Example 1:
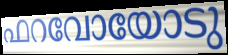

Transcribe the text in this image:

ഫറവോയോടു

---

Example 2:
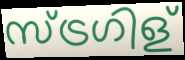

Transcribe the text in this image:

സ്ട്രഗിള്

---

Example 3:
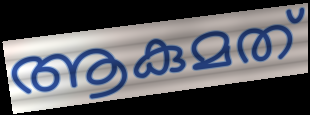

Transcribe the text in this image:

ആകുമത്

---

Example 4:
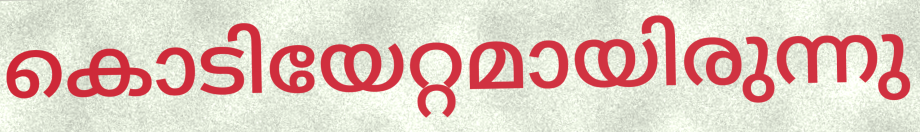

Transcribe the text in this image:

കൊടിയേറ്റമായിരുന്നു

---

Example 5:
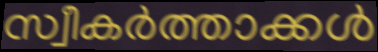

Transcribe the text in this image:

സ്വീകർത്താക്കൾ